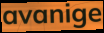
avanige